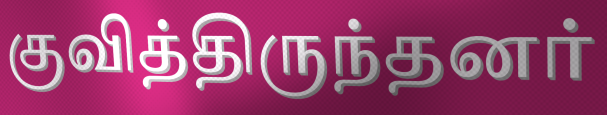
குவித்திருந்தனர்